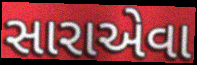
સારાએવા